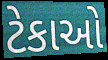
ટેકાઓ